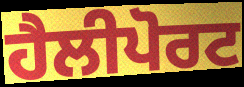
ਹੈਲੀਪੋਰਟ